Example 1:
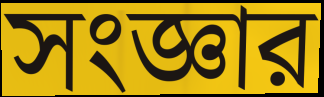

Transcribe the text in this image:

সংজ্ঞার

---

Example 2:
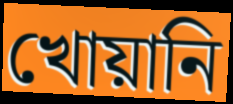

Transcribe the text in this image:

খোয়ানি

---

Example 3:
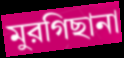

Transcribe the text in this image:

মুরগিছানা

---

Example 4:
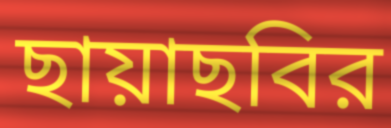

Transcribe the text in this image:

ছায়াছবির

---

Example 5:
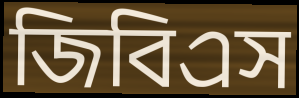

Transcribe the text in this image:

জিবিএস